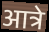
आत्रे